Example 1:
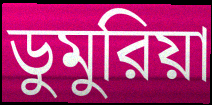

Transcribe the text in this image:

ডুমুরিয়া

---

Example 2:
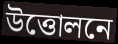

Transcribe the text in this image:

উত্তোলনে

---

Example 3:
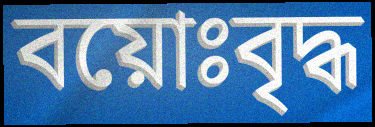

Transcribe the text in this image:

বয়োঃবৃদ্ধ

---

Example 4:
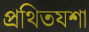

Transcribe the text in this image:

প্রথিতযশা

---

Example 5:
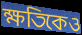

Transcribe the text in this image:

ক্ষতিকেও